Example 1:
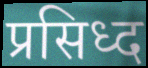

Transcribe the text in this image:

प्रसिध्द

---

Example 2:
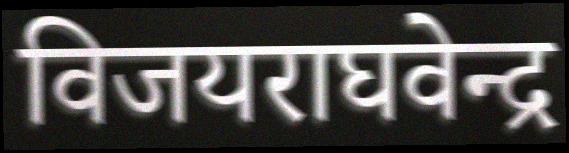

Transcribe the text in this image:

विजयराघवेन्द्र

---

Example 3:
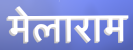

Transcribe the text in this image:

मेलाराम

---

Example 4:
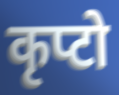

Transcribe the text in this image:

कृप्टो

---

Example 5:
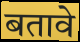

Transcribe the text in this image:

बतावे